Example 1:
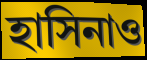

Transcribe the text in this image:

হাসিনাও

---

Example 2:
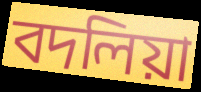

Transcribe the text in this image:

বদলিয়া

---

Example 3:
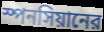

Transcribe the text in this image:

স্পনসিয়ানের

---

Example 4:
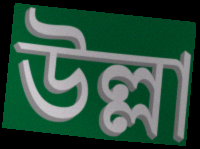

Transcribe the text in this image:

উল্লা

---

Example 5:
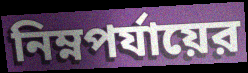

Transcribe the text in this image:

নিম্নপর্যায়ের